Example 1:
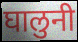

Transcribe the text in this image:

घालुनी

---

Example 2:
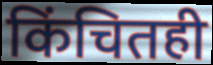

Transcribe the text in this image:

किंचितही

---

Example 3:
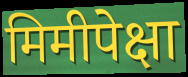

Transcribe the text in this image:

मिमीपेक्षा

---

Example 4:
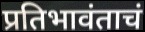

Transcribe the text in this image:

प्रतिभावंताचं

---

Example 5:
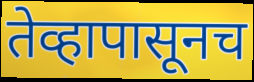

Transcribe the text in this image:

तेव्हापासूनच